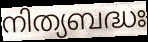
നിത്യബദ്ധഃ